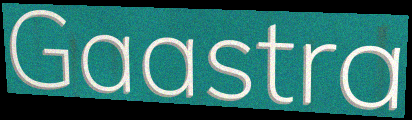
Gaastra